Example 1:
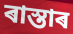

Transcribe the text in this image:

ৰাস্তাৰ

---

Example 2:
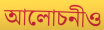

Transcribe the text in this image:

আলোচনীও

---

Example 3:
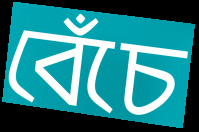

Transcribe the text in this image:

বেঁচে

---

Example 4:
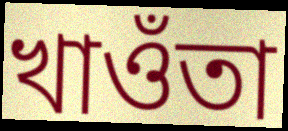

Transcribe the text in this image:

খাওঁতা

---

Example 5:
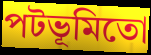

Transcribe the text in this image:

পটভূমিতো